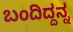
ಬಂದಿದ್ದನ್ನ